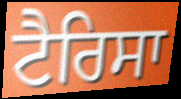
ਟੈਰਿਸਾ